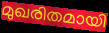
മുഖരിതമായി